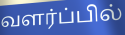
வளர்ப்பில்